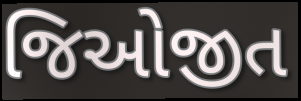
જિઓજીત